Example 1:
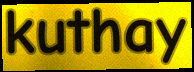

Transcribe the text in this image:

kuthay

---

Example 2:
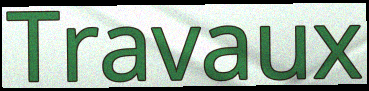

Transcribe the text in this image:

Travaux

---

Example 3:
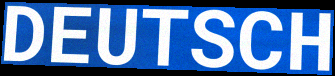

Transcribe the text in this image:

DEUTSCH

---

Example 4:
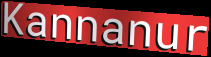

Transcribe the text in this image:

Kannanur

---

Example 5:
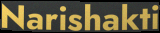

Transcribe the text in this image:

Narishakti